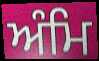
ਅੰਮਿ